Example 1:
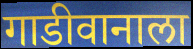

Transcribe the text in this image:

गाडीवानाला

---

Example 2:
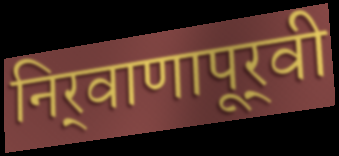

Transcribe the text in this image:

निर्वाणापूर्वी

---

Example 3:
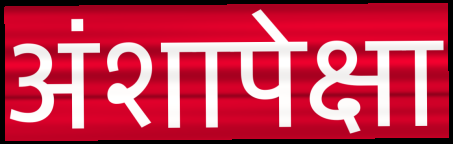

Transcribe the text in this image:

अंशापेक्षा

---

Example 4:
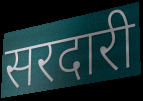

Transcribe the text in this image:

सरदारी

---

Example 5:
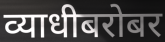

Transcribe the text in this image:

व्याधीबरोबर